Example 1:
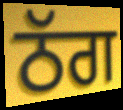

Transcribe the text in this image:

ਠੱਗ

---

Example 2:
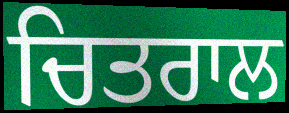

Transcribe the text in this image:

ਚਿਤਰਾਲ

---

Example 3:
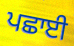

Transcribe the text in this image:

ਪਛਾਈ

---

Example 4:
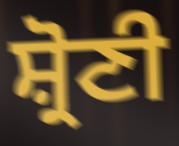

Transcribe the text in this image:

ਸ਼੍ਰੋਣੀ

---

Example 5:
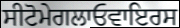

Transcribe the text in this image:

ਸੀਟੋਮੇਗਲਾਓਵਾਇਰਸ